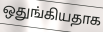
ஒதுங்கியதாக